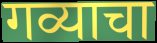
गव्याचा